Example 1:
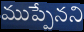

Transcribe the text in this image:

ముప్పేనని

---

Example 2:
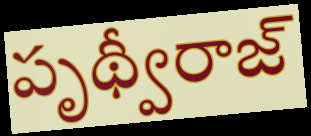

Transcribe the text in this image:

పృథ్వీరాజ్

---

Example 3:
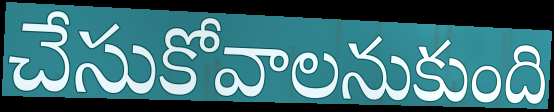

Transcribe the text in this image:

చేసుకోవాలనుకుంది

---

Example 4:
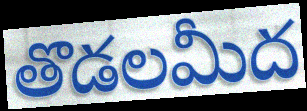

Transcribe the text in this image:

తొడలమీద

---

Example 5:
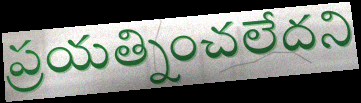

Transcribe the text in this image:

ప్రయత్నించలేదని